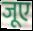
जूए